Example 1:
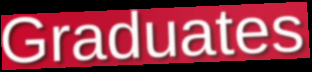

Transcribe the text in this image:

Graduates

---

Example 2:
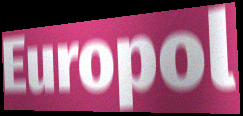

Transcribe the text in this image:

Europol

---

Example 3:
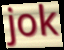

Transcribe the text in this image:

jok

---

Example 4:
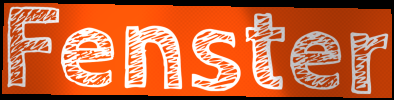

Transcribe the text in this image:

Fenster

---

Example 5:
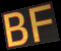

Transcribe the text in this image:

BF